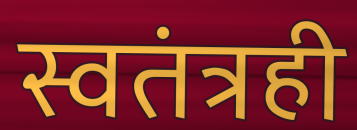
स्वतंत्रही